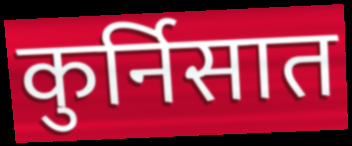
कुर्निसात